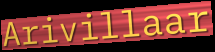
Arivillaar